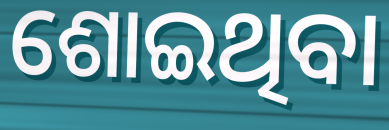
ଶୋଇଥିବା